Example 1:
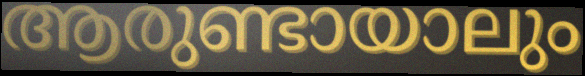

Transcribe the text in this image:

ആരുണ്ടായാലും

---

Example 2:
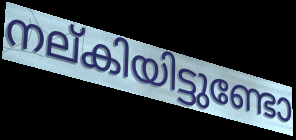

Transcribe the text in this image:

നല്കിയിട്ടുണ്ടോ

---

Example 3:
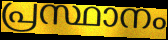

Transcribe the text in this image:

പ്രസ്ഥാനം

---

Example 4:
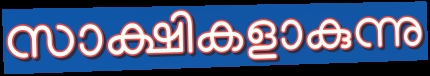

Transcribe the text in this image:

സാക്ഷികളാകുന്നു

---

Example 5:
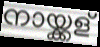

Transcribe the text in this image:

നായ്ക്കള്